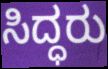
ಸಿದ್ಧರು